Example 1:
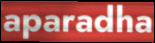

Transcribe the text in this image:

aparadha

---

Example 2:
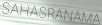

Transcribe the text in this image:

SAHASRANAMA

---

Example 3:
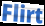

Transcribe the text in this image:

Flirt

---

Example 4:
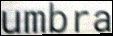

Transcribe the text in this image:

umbra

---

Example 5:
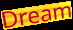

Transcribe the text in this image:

Dream